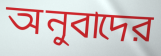
অনুবাদের